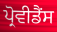
ਪ੍ਰੋਵੀਡੈਂਸ